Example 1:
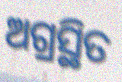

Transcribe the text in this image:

ଅଗ୍ରସ୍ଥିତ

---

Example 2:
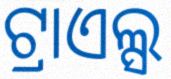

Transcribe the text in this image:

ଟ୍ରାଏଲ୍ସ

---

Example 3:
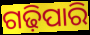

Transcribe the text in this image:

ଗଢ଼ିପାରି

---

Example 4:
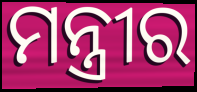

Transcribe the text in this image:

ମନ୍ତ୍ରୀର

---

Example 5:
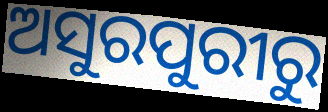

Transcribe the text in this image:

ଅସୁରପୁରୀରୁ